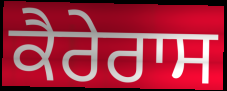
ਕੈਰੇਰਾਸ